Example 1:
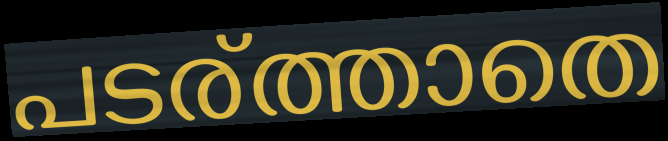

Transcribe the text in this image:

പടര്ത്താതെ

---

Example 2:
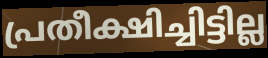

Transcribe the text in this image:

പ്രതീക്ഷിച്ചിട്ടില്ല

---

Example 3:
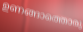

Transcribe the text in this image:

ഉണങ്ങാത്തൊരു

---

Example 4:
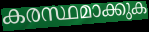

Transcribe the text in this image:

കരസ്ഥമാക്കുക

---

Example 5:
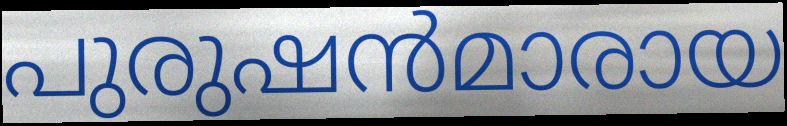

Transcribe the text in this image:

പുരുഷൻമാരായ